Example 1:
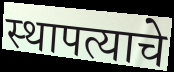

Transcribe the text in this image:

स्थापत्याचे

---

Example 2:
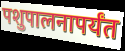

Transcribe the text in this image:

पशुपालनापर्यंत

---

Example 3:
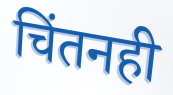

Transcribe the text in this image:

चिंतनही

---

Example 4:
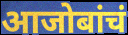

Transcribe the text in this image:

आजोबांचं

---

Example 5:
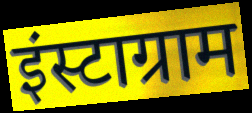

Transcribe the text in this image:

इंस्टाग्राम